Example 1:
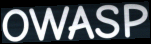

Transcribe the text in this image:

OWASP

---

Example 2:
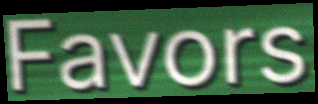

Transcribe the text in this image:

Favors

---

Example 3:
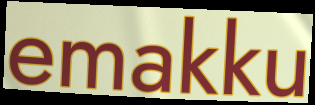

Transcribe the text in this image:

emakku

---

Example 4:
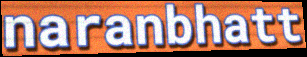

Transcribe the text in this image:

naranbhatt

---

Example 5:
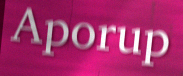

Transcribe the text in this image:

Aporup